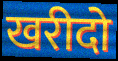
खरीदो